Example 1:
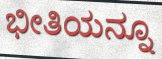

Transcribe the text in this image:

ಭೀತಿಯನ್ನೂ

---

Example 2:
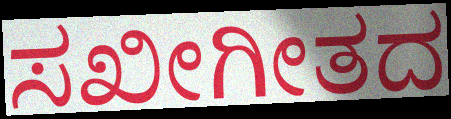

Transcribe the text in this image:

ಸಖೀಗೀತದ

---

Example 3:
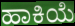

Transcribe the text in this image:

ಹಾಕಿಯೆ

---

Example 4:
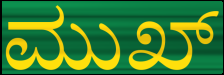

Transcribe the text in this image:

ಮುಖ್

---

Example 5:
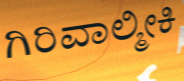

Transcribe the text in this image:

ಗಿರಿವಾಲ್ಮೀಕಿ